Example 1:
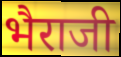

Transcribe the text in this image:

भैराजी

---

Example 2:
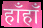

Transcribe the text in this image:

हाँहाँ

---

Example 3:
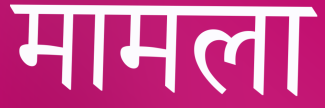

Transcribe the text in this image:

मामला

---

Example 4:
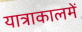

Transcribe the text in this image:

यात्राकालमें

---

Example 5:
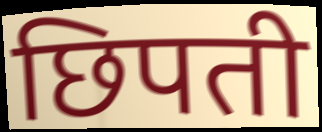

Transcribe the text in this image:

छिपती